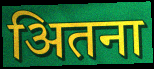
अितना